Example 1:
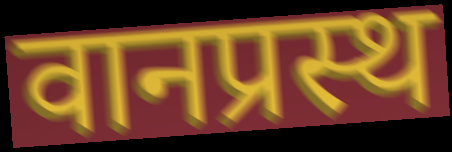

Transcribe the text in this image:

वानप्रस्थ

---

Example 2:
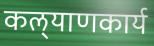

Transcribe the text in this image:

कल्याणकार्य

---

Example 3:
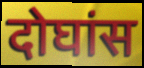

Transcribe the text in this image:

दोघांस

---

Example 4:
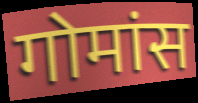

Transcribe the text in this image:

गोमांस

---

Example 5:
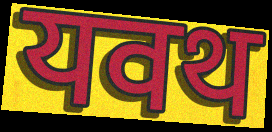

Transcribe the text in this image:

यवथ